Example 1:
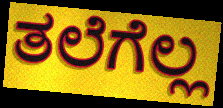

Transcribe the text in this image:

ತಲೆಗೆಲ್ಲ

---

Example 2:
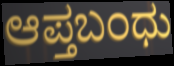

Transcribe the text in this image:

ಆಪ್ತಬಂಧು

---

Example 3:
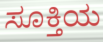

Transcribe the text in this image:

ಸೂಕ್ತಿಯ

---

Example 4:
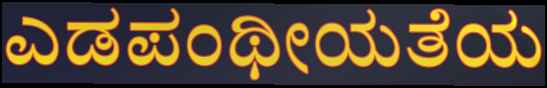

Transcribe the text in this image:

ಎಡಪಂಥೀಯತೆಯ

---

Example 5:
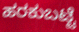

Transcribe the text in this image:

ಹರಕುಬಟ್ಟೆ